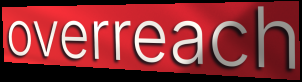
overreach